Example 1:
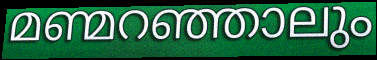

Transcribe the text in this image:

മണ്മറഞ്ഞാലും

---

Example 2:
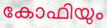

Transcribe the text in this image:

കോഫിയും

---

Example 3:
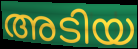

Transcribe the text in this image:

അടിയ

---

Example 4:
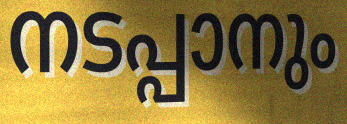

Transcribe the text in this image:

നടപ്പാനും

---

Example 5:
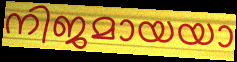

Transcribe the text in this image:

നിജമായയാ